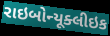
રાઇબોન્યૂક્લીઇક